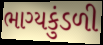
ભાગ્યકુંડળી